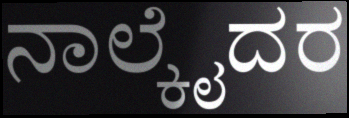
ನಾಲ್ಕೈದರ